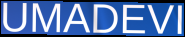
UMADEVI